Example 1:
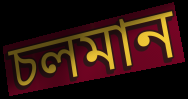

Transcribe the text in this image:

চলমান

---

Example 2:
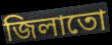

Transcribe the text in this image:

জিলাতো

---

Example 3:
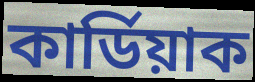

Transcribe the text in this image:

কাৰ্ডিয়াক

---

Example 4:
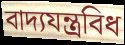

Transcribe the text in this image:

বাদ্যযন্ত্ৰবিধ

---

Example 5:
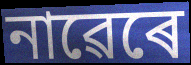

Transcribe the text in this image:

নাৱেৰে